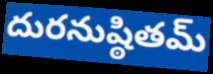
దురనుష్ఠితమ్